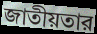
জাতীয়তার